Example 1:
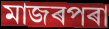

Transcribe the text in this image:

মাজৰপৰা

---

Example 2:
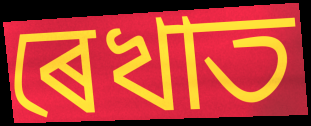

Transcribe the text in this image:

ৰেখাত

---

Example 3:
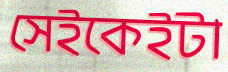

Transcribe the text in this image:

সেইকেইটা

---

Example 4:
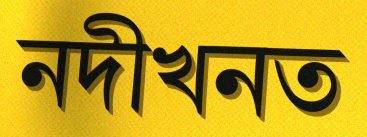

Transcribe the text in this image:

নদীখনত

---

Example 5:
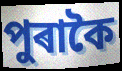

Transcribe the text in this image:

পুৰাকৈ